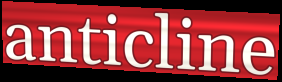
anticline